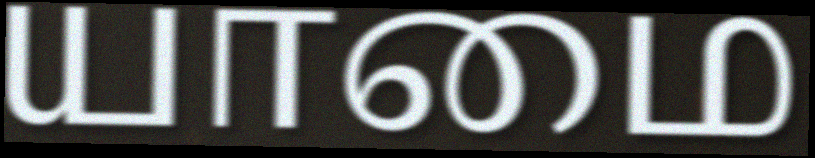
யாமை